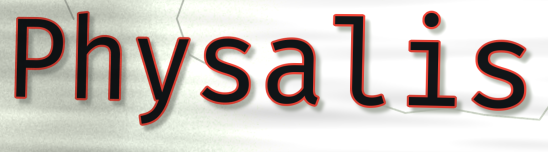
Physalis